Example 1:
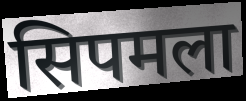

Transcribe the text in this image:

सिपमला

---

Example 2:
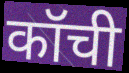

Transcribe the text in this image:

कॉची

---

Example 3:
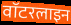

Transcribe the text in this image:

वॉटरलाइन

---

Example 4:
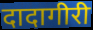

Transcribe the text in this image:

दादागीरी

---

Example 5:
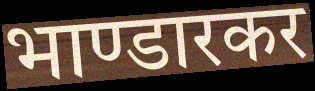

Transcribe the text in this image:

भाण्डारकर